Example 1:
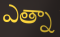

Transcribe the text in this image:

ఎత్నా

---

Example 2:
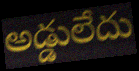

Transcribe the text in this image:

అడ్డులేదు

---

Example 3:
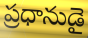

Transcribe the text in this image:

ప్రధానుడై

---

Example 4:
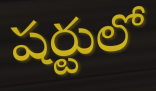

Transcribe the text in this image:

షర్టులో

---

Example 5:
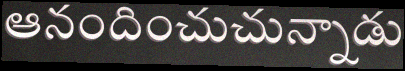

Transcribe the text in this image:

ఆనందించుచున్నాడు